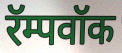
रॅम्पवॉक